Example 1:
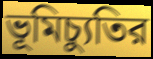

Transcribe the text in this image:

ভূমিচ্যুতির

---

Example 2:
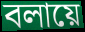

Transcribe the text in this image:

বলায়ে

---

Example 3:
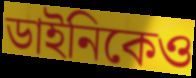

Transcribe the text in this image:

ডাইনিকেও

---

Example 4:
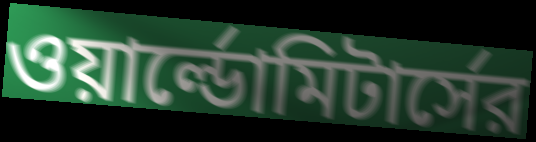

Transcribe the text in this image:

ওয়ার্ল্ডোমিটার্সের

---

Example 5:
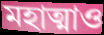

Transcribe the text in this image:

মহাত্মাও